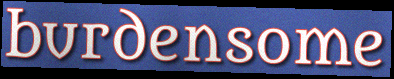
burdensome